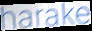
harake